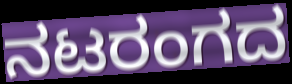
ನಟರಂಗದ